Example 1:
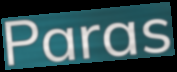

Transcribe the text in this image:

Paras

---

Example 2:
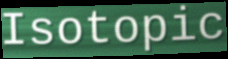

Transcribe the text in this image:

Isotopic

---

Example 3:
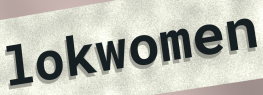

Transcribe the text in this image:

lokwomen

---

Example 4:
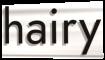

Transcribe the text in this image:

hairy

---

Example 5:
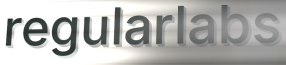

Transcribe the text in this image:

regularlabs